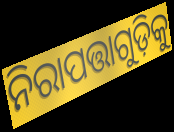
ନିରାପତ୍ତାଗୁଡ଼ିକୁ